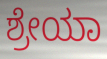
ಶ್ರೇಯಾ